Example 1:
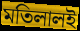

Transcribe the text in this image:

মতিলালই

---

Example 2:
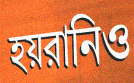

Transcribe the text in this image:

হয়রানিও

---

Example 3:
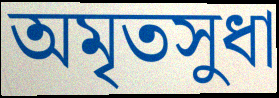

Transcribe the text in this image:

অমৃতসুধা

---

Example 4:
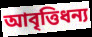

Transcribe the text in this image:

আবৃত্তিধন্য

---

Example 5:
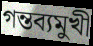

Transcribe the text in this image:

গন্তব্যমুখী